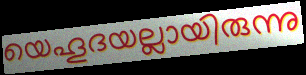
യെഹൂദയല്ലായിരുന്നു